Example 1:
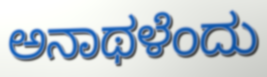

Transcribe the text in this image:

ಅನಾಥಳೆಂದು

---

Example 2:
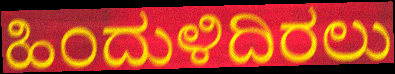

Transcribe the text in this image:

ಹಿಂದುಳಿದಿರಲು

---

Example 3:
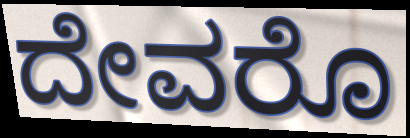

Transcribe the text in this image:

ದೇವರೊ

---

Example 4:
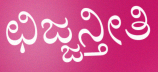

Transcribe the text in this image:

ಛಿಜ್ಜನ್ತೀತಿ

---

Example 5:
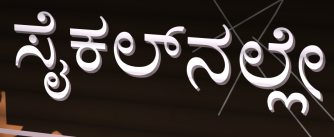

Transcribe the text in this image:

ಸೈಕಲ್‌ನಲ್ಲೇ